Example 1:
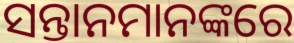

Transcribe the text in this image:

ସନ୍ତାନମାନଙ୍କରେ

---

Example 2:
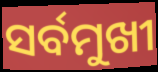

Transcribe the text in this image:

ସର୍ବମୁଖୀ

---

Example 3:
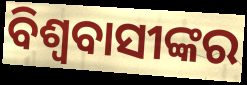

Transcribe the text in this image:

ବିଶ୍ୱବାସୀଙ୍କର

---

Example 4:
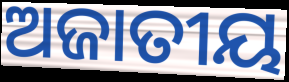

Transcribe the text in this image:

ଅଜାତୀୟ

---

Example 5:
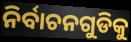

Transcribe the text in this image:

ନିର୍ବାଚନଗୁଡିକୁ